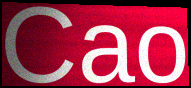
Cao